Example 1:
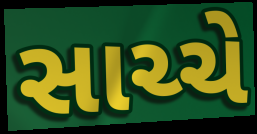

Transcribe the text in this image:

સાચ્ચે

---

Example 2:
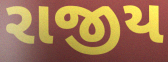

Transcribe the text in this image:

રાજીય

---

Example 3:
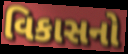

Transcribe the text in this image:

વિકાસનો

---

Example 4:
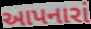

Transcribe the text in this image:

આપનારાં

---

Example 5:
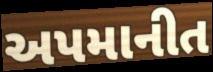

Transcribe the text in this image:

અપમાનીત